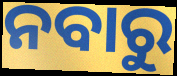
ନବାରୁ